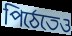
পিঠেতেও